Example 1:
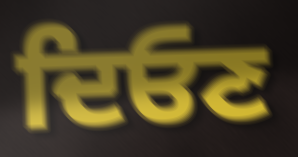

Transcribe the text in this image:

ਦਿਓਣ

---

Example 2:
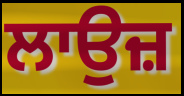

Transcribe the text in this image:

ਲਾਉਜ਼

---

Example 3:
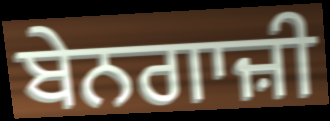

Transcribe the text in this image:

ਬੇਨਗਾਜ਼ੀ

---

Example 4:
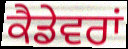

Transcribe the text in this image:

ਕੈਡੇਵਰਾਂ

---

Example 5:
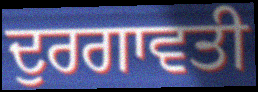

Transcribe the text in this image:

ਦੁਰਗਾਵਤੀ